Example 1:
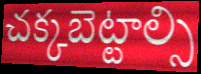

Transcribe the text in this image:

చక్కబెట్టాల్సి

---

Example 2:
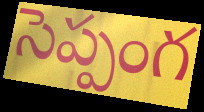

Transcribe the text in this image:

సెప్పంగ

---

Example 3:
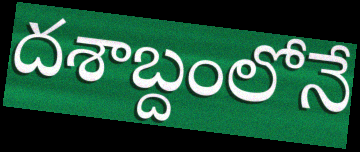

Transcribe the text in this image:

దశాబ్దంలోనే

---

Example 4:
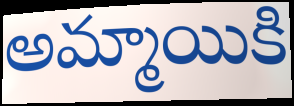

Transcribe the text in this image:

అమ్మాయికి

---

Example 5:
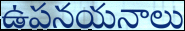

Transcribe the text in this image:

ఉపనయనాలు